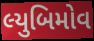
લ્યુબિમોવ